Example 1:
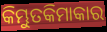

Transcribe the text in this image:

କିମ୍ଭୁତକିମାକାର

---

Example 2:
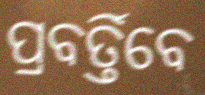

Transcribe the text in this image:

ପ୍ରବର୍ତ୍ତିବେ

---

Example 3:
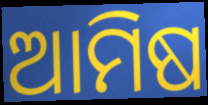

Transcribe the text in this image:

ଆମିଷ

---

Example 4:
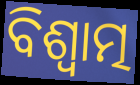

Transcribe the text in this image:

ବିଶ୍ୱାତ୍ମ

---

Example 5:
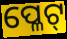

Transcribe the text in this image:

ପ୍ଳେଟ୍